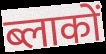
ब्लाकों